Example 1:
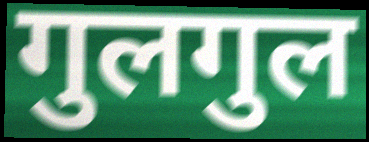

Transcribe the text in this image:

गुलगुल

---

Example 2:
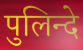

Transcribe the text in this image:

पुलिन्दे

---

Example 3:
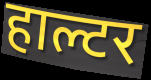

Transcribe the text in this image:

हाल्टर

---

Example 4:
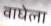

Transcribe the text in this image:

वाघेला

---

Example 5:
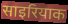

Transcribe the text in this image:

साइरियाक